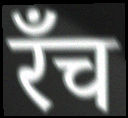
रँच